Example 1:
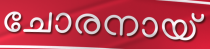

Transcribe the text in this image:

ചോരനായ്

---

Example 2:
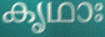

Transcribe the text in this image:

കൃഥാഃ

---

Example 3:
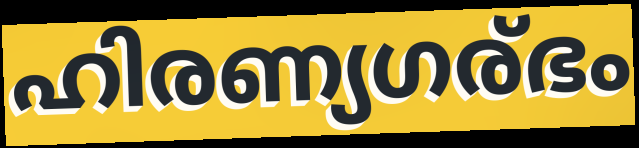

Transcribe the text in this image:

ഹിരണ്യഗര്ഭം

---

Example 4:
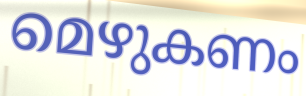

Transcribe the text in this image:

മെഴുകണം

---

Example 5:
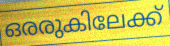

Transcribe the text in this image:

ഒരരുകിലേക്ക്